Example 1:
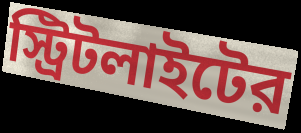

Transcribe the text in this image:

স্ট্রিটলাইটের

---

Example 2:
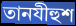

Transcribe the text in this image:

তানযীহুশ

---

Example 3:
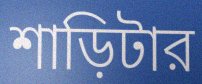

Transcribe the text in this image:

শাড়িটার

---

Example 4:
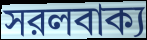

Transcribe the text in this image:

সরলবাক্য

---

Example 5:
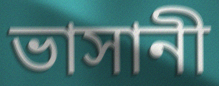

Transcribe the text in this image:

ভাসানী